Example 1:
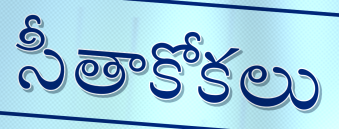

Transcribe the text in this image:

సీతాకోకలు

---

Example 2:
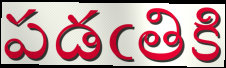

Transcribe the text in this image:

పడఁతికి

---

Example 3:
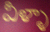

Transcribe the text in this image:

వీళ్ళా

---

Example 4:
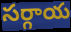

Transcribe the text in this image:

సర్గాయ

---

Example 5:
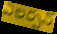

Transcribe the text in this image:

ఎలర్పన్